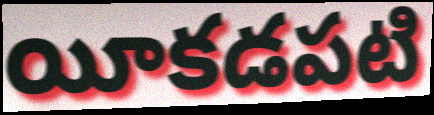
యీకడపటి